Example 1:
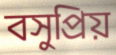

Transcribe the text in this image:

বসুপ্রিয়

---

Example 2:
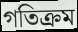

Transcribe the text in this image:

গতিক্রম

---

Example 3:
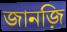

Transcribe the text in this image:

জানজ়ি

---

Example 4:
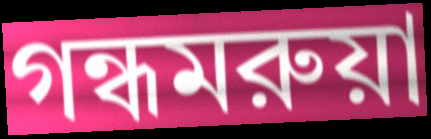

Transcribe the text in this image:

গন্ধমরুয়া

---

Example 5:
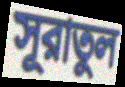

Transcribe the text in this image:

সূরাতুল